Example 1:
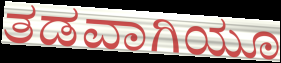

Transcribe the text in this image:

ತಡವಾಗಿಯೂ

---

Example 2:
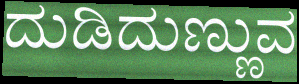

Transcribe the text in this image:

ದುಡಿದುಣ್ಣುವ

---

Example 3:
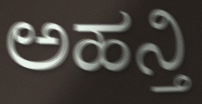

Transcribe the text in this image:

ಅಹನ್ತಿ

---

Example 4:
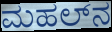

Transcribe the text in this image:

ಮಹಲ್‌ನ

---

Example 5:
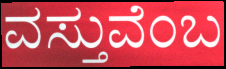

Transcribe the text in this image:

ವಸ್ತುವೆಂಬ